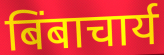
बिंबाचार्य